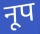
नूप